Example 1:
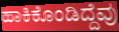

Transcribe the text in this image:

ಹಾಕಿಕೊಂಡಿದ್ದೆವು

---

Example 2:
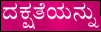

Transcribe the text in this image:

ದಕ್ಷತೆಯನ್ನು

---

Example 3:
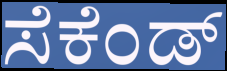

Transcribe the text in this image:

ಸೆಕೆಂಡ್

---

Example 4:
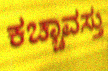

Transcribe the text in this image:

ಕಚ್ಚಾವಸ್ತು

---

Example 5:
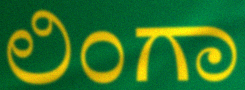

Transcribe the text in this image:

ಲಿಂಗಾ